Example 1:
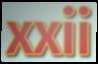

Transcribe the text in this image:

xxii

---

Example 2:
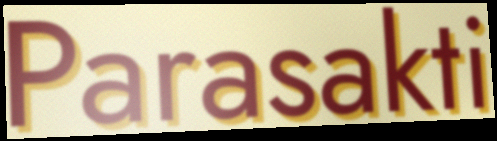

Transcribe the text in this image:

Parasakti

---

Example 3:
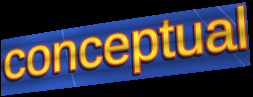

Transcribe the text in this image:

conceptual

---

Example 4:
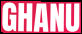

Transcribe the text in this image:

GHANU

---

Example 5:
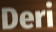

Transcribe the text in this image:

Deri